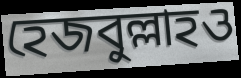
হেজবুল্লাহও